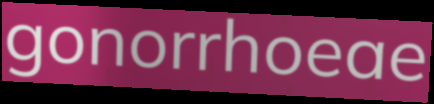
gonorrhoeae